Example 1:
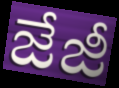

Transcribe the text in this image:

జేజీ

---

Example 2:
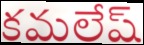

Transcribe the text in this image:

కమలేష్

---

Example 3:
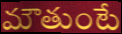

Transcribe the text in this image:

మౌతుంటే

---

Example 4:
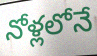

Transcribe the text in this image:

నోళ్లలోనే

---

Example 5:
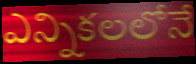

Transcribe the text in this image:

ఎన్నికలలోనే